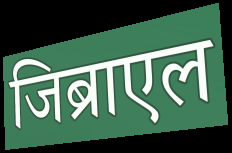
जिब्राएल